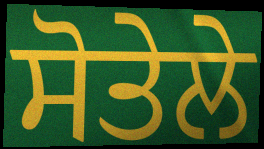
ਸੋਤੇਲੇ